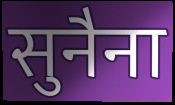
सुनैना